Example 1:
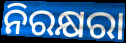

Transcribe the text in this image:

ନିରକ୍ଷରା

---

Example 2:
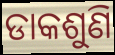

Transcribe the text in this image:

ଡାକଶୁଣି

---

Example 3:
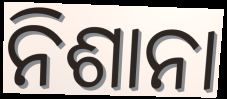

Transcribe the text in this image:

ନିଶାନା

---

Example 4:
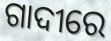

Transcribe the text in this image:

ଗାଦୀରେ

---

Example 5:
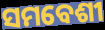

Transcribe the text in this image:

ସମବେଶୀ